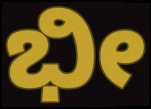
ಭೀ